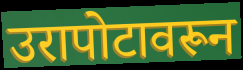
उरापोटावरून